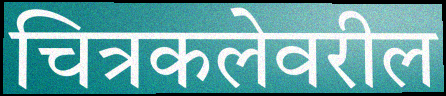
चित्रकलेवरील